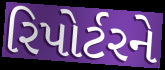
રિપોર્ટરને